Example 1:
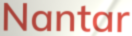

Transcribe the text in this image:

Nantar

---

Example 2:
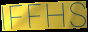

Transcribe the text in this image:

IFFHS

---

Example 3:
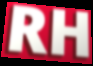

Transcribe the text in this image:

RH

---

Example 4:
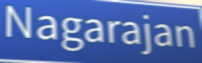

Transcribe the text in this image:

Nagarajan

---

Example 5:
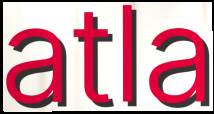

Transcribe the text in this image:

atla